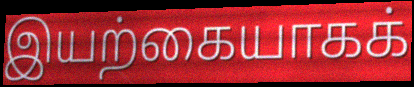
இயற்கையாகக்